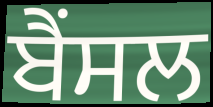
ਬੈਂਸਲ